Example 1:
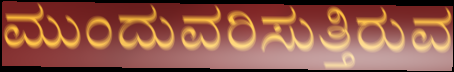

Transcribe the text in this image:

ಮುಂದುವರಿಸುತ್ತಿರುವ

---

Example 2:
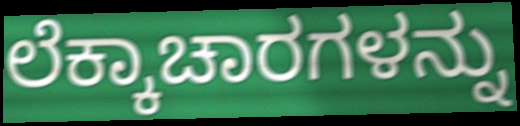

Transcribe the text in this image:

ಲೆಕ್ಕಾಚಾರಗಳನ್ನು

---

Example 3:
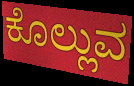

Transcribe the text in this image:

ಕೊಲ್ಲುವ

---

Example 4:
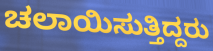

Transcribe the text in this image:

ಚಲಾಯಿಸುತ್ತಿದ್ದರು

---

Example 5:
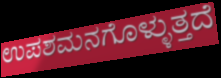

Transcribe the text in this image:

ಉಪಶಮನಗೊಳ್ಳುತ್ತದೆ